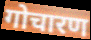
गोचारण